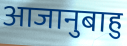
आजानुबाहु